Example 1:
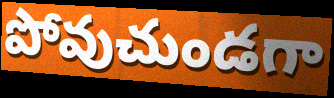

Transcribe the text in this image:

పోవుచుండగా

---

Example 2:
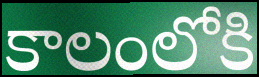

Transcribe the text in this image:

కాలంలోకి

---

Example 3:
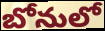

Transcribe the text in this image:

బోనులో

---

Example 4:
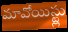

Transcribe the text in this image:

మావోయిస్ట్లు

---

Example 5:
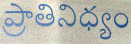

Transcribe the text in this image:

ప్రాతినిధ్యం